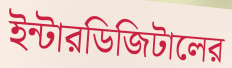
ইন্টারডিজিটালের